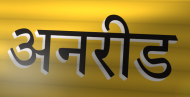
अनरीड